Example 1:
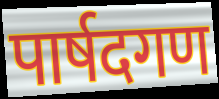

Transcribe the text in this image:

पार्षदगण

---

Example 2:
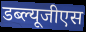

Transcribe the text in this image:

डब्ल्यूजीएस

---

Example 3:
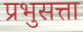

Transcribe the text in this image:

प्रभुसत्ता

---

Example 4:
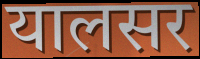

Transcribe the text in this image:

यालसर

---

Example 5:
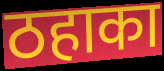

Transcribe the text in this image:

ठहाका